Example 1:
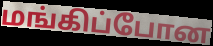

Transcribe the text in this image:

மங்கிப்போன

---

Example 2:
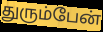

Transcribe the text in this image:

துரும்பேன்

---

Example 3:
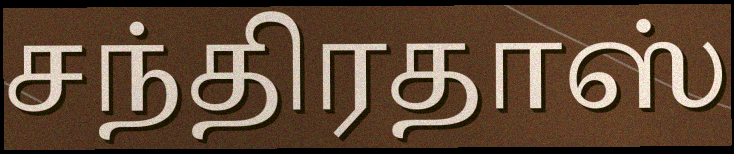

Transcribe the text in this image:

சந்திரதாஸ்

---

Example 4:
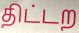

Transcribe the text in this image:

திட்டற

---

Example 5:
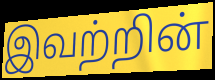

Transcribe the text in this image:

இவற்றின்